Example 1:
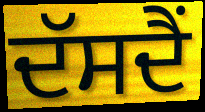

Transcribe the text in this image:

ਦੱਸਦੈਂ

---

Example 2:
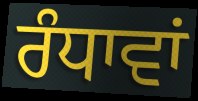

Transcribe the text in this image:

ਰੰਧਾਵਾਂ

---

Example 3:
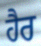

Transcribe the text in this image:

ਹੈਰ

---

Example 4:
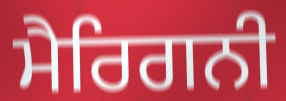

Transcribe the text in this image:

ਮੈਰਿਗਨੀ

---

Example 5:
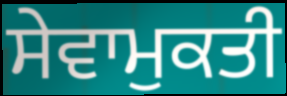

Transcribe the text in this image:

ਸੇਵਾਮੁਕਤੀ